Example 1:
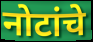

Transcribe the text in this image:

नोटांचे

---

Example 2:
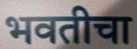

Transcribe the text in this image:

भवतीचा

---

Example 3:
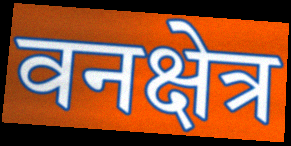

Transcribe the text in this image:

वनक्षेत्र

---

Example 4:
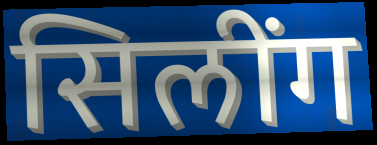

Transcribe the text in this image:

सिलींग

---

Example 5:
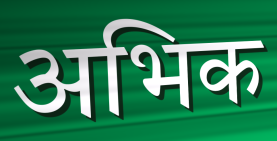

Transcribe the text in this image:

अभिक